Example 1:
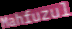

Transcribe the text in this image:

Mahfuzul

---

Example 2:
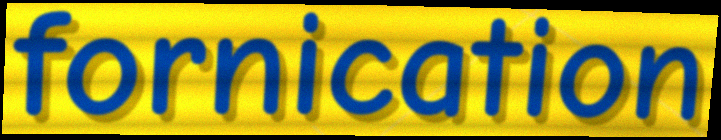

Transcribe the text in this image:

fornication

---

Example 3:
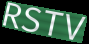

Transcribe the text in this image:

RSTV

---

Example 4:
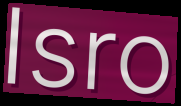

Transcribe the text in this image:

Isro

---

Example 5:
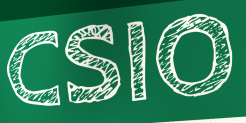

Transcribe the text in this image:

CSIO